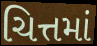
ચિત્તમાં